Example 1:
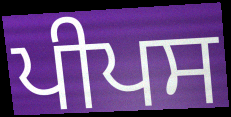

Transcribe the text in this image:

ਪੀਪਸ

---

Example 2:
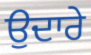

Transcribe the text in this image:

ਉਦਾਰੇ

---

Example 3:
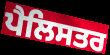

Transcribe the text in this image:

ਪੈਲਿਸਤਰ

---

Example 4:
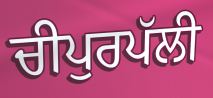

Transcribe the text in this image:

ਚੀਪੁਰਪੱਲੀ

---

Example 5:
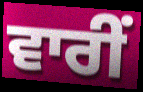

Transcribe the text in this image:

ਵਾਰੀਂ